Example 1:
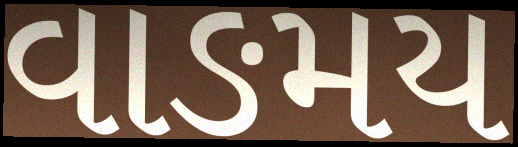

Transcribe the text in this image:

વાઙમય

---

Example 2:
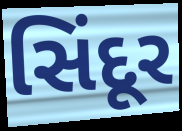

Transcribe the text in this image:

સિંદૂર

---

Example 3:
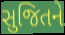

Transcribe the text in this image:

સુજિતને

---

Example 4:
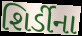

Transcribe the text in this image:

શિર્ડીના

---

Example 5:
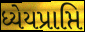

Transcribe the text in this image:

ધ્યેયપ્રાપ્તિ